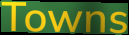
Towns